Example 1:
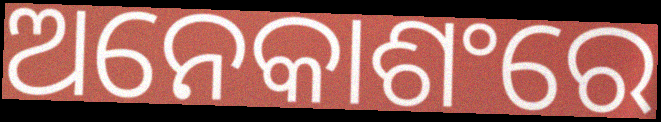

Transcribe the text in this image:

ଅନେକାଶଂରେ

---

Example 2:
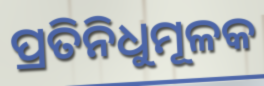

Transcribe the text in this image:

ପ୍ରତିନିଧୁମୂଳକ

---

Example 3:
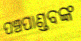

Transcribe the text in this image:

ପଞ୍ଚପାଣ୍ଡବଙ୍କ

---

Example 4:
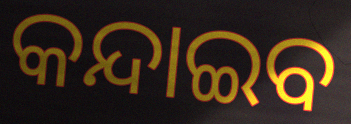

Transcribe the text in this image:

କନ୍ଦାଇବ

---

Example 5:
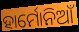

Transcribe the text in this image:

ହାର୍ମୋନିଆଁ